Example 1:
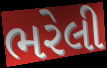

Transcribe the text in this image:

ભરેલી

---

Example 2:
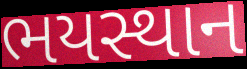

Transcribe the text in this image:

ભયસ્થાન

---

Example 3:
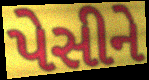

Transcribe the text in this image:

પેસીને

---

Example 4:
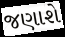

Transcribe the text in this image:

જણાશે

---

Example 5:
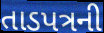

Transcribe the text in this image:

તાડપત્રની